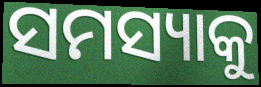
ସମସ୍ୟାକୁ